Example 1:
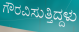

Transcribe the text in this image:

ಗೌರವಿಸುತ್ತಿದ್ದಳು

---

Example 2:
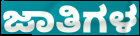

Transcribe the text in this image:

ಜಾತಿಗಳ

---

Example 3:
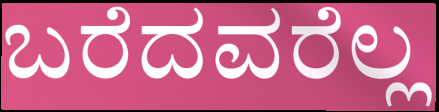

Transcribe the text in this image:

ಬರೆದವರೆಲ್ಲ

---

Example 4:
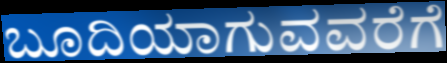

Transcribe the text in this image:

ಬೂದಿಯಾಗುವವರೆಗೆ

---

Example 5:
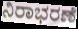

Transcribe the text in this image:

ನಿರಾಭರಣೆ